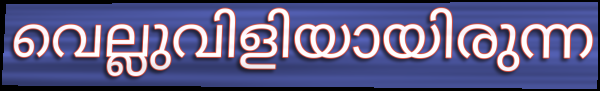
വെല്ലുവിളിയായിരുന്ന